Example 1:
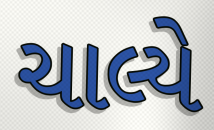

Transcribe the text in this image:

ચાલ્યે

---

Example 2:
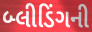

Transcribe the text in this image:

બ્લીડિંગની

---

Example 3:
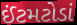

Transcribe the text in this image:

ઈંટમટોડાં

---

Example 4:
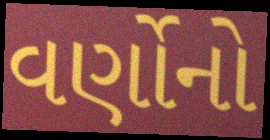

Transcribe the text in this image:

વર્ણોનો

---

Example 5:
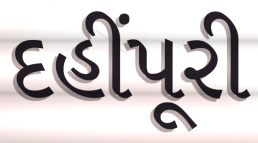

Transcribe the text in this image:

દહીંપૂરી